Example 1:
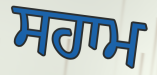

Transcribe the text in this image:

ਸਹਾਮ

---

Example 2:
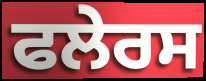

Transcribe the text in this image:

ਫਲੇਰਸ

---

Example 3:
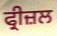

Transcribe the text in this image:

ਫ੍ਰੀਜ਼ਲ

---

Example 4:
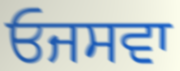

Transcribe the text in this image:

ਓਜਸਵਾ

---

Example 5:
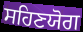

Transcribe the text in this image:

ਸਹਿਣਯੋਗ